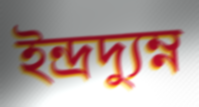
ইন্দ্রদ্যুম্ন